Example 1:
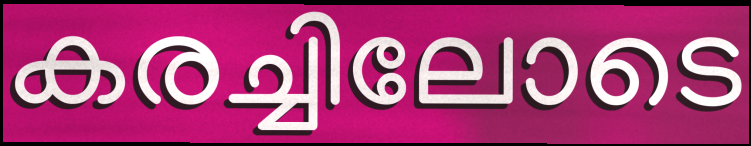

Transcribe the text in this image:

കരച്ചിലോടെ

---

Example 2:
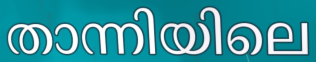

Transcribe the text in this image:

താന്നിയിലെ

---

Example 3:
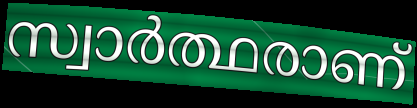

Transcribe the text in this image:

സ്വാർത്ഥരാണ്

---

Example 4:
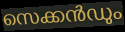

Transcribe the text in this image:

സെക്കൻഡും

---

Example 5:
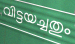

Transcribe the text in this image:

വിട്ടയച്ചതും